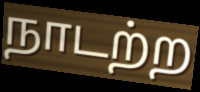
நாடற்ற